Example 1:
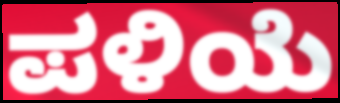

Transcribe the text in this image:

ಪಳಿಯೆ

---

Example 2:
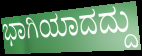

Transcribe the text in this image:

ಭಾಗಿಯಾದದ್ದು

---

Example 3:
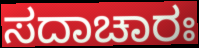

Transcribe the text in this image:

ಸದಾಚಾರಃ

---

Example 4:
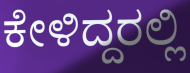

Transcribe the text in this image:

ಕೇಳಿದ್ದರಲ್ಲಿ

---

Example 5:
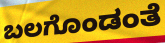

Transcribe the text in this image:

ಬಲಗೊಂಡಂತೆ